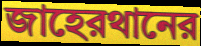
জাহেরথানের